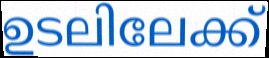
ഉടലിലേക്ക്